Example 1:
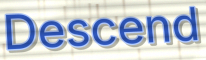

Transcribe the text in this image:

Descend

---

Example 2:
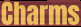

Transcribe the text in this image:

Charms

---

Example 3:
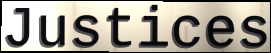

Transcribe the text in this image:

Justices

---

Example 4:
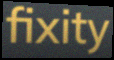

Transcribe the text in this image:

fixity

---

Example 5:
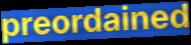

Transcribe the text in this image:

preordained